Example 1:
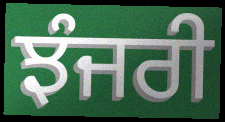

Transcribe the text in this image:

ਝੰਜਰੀ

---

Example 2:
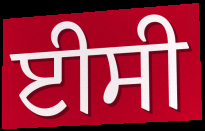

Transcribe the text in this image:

ਈਸੀ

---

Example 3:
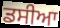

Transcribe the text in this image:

ਡਸੀਆ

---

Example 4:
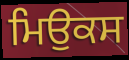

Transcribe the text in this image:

ਮਿਉਕਸ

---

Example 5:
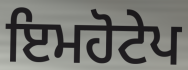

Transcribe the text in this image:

ਇਮਹੋਟੇਪ